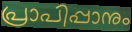
പ്രാപിപ്പാനും